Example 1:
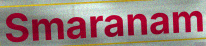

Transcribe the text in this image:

Smaranam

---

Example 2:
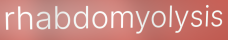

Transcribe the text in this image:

rhabdomyolysis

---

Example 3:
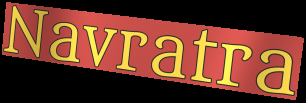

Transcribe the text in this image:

Navratra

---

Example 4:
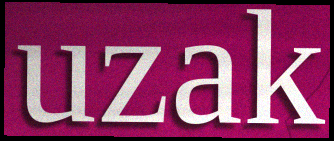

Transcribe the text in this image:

uzak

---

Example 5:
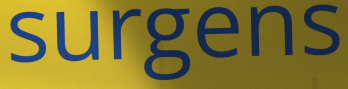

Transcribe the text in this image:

surgens